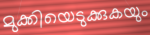
മുക്കിയെടുക്കുകയും